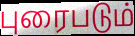
புரைபடும்